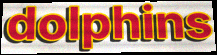
dolphins